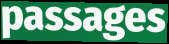
passages